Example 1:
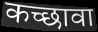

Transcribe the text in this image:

कच्छावा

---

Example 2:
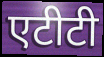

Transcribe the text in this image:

एटीटी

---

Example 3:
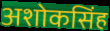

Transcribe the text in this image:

अशोकसिंह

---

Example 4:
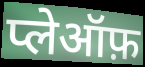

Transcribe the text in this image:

प्लेऑफ़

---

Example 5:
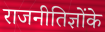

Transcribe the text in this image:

राजनीतिज्ञोंके